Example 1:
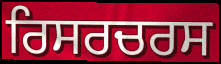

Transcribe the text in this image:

ਰਿਸਰਚਰਸ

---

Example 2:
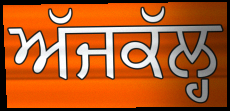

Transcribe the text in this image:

ਅੱਜਕੱਲ੍ਹ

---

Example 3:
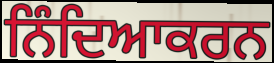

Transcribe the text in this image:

ਨਿੰਦਿਆਕਰਨ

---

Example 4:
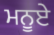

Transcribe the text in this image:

ਮਨੂਏ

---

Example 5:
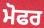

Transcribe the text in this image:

ਮੋਫਰ